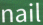
nail